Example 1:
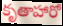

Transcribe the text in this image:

కృతాహారో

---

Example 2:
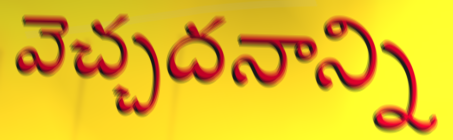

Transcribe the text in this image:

వెచ్చదనాన్ని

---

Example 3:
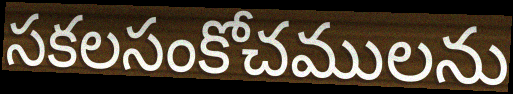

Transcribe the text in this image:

సకలసంకోచములను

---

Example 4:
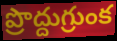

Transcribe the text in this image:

ప్రొద్దుగ్రుంక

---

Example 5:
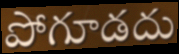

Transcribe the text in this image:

పోగూడదు